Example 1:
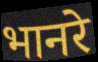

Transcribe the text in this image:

भानरे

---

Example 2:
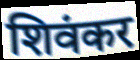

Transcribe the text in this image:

शिवंकर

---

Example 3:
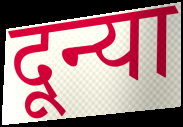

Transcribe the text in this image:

दून्या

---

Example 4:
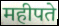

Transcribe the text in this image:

महीपते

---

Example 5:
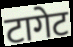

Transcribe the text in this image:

टागेट